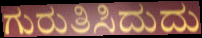
ಗುರುತಿಸಿದುದು